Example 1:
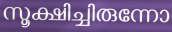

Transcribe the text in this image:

സൂക്ഷിച്ചിരുന്നോ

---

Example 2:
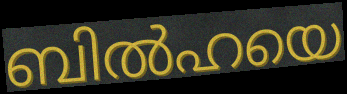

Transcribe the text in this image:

ബിൽഹയെ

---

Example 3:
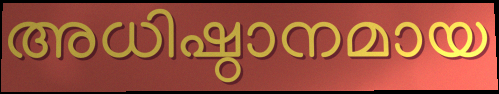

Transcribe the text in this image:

അധിഷ്ഠാനമായ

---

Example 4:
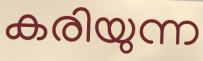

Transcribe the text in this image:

കരിയുന്ന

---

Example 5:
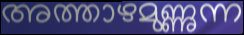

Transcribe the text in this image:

അത്താഴമുണ്ണുന്ന